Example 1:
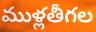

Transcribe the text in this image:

ముళ్లతీగల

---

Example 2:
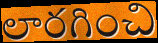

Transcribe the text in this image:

లారగించి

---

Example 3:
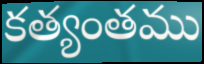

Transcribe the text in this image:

కత్యంతము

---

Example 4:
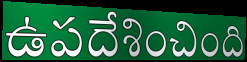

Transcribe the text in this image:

ఉపదేశించింది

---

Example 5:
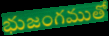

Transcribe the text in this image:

భుజంగముతో